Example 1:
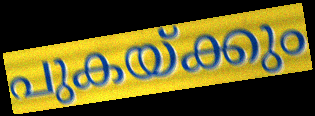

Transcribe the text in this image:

പുകയ്ക്കും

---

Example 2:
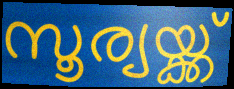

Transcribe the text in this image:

സൂര്യയ്ക്ക്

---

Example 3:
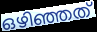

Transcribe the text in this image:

ഒഴിഞ്ഞത്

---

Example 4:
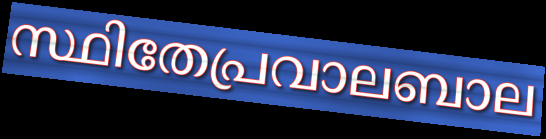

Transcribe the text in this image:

സ്ഥിതേപ്രവാലബാല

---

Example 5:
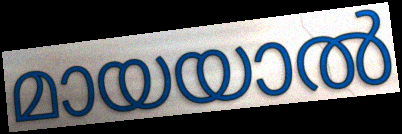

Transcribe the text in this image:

മായയാൽ